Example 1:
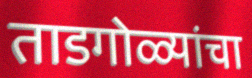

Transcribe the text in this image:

ताडगोळ्यांचा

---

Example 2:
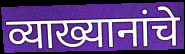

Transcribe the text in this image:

व्याख्यानांचे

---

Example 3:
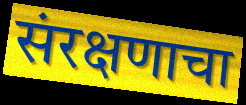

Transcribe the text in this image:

संरक्षणाचा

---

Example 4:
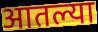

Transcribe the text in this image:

आतल्या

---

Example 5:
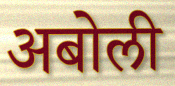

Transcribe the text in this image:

अबोली